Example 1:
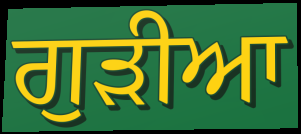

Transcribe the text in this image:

ਗੁਡ਼ੀਆ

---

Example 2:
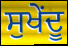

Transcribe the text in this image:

ਸੁਖੇਂਦੂ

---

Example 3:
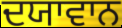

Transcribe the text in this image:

ਦਯਾਵਾਨ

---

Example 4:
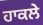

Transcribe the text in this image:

ਹਾਕਲੇ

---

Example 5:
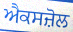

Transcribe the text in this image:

ਐਕਸਜ਼ੋਲ